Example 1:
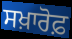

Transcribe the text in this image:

ਸਖ਼ਾਰੋਫ਼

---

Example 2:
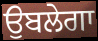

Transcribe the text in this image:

ਉਬਲੇਗਾ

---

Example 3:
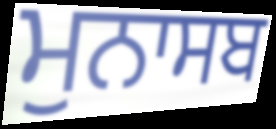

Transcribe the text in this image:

ਮੁਨਾਸਬ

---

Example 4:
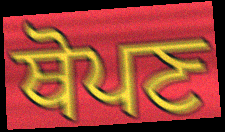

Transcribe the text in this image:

ਥੋਪਣ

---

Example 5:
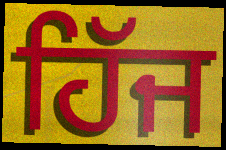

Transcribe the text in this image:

ਹਿੱਜ